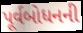
પૂર્વબોધનની